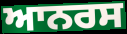
ਆਨਰਸ